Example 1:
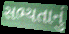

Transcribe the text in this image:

સભ્યતાનું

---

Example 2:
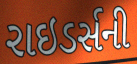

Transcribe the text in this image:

રાઇડર્સની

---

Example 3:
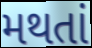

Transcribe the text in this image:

મથતાં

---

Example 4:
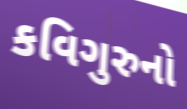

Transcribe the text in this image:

કવિગુરુનો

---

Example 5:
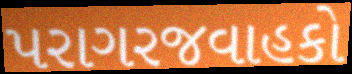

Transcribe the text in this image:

પરાગરજવાહકો